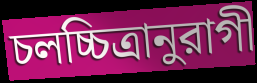
চলচ্চিত্রানুরাগী